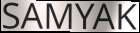
SAMYAK